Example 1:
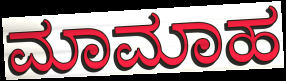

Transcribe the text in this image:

ಮಾಮಾಹ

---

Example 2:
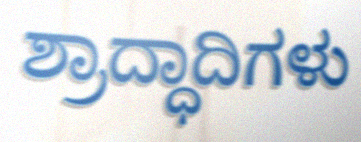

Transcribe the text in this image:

ಶ್ರಾದ್ಧಾದಿಗಳು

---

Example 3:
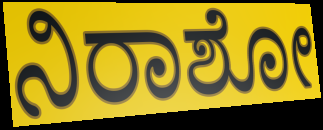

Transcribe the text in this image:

ನಿರಾಶೋ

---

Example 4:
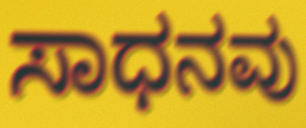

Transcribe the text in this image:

ಸಾಧನವು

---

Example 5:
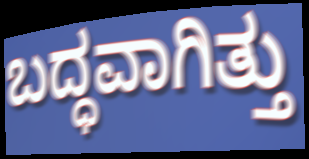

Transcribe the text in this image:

ಬದ್ಧವಾಗಿತ್ತು